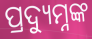
ପ୍ରଦ୍ୟୁମ୍ନଙ୍କ